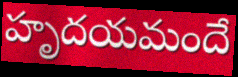
హృదయమందే